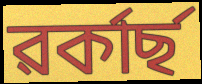
ৱৰ্কাৰ্ছ